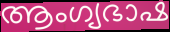
ആംഗ്യഭാഷ